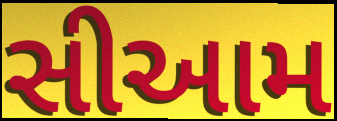
સીઆમ